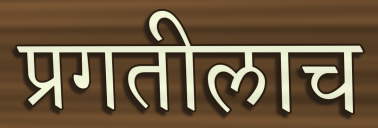
प्रगतीलाच